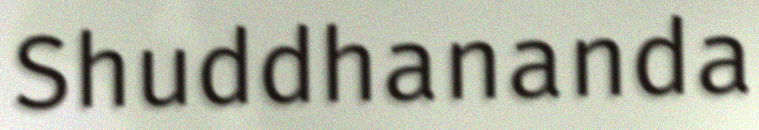
Shuddhananda